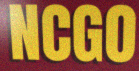
NCGO